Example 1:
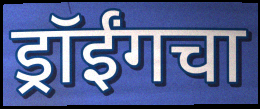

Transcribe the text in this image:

ड्रॉईंगचा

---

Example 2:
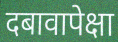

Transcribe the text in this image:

दबावापेक्षा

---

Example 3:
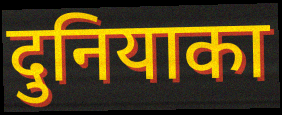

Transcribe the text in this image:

दुनियाका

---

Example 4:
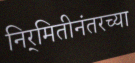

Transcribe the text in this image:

निर्मितीनंतरच्या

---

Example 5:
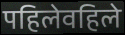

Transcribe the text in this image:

पहिलेवहिले